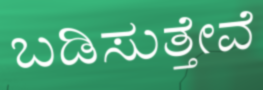
ಬಡಿಸುತ್ತೇವೆ